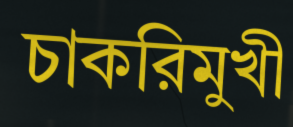
চাকরিমুখী